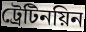
ট্রেটিনয়িন